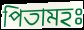
পিতামহঃ